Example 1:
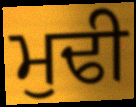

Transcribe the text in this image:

ਮੁਢੀ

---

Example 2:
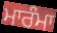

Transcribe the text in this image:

ਮਾਰੰਮਾ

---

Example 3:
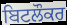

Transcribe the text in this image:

ਬਿਟਲੌਕਰ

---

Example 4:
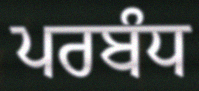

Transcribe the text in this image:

ਪਰਬੰਧ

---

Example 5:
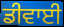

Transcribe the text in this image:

ਡੀਵਾਈ